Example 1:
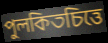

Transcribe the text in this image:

পুলকিতচিত্তে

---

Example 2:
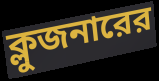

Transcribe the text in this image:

ক্লুজনারের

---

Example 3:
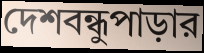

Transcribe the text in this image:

দেশবন্ধুপাড়ার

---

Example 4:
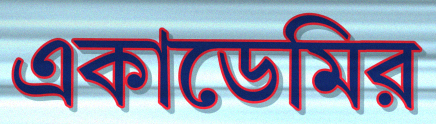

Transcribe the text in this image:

একাডেমির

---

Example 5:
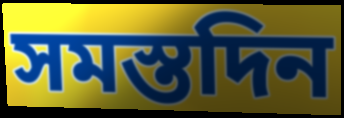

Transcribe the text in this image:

সমস্তদিন